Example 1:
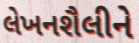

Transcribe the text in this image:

લેખનશૈલીને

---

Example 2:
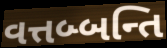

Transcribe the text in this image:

વત્તબ્બન્તિ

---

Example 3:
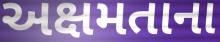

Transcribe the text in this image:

અક્ષમતાના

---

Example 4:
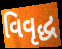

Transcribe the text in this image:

વિવૃદ્ધ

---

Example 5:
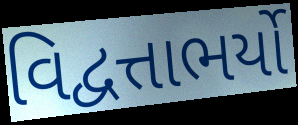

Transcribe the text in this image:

વિદ્વત્તાભર્યો